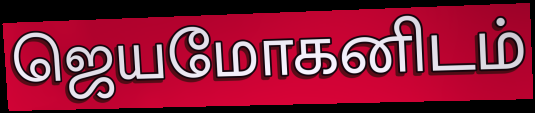
ஜெயமோகனிடம்